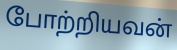
போற்றியவன்